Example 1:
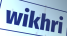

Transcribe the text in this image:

wikhri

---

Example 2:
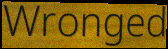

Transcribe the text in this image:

Wronged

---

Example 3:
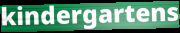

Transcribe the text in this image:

kindergartens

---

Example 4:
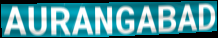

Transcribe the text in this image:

AURANGABAD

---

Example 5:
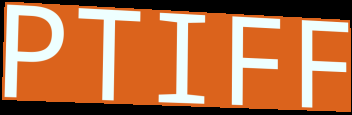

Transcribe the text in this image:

PTIFF